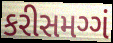
કરીસમગ્ગં